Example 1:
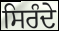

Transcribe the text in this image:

ਸਿਰੰਦੇ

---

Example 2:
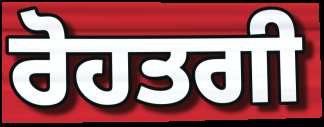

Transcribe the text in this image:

ਰੋਹਤਗੀ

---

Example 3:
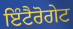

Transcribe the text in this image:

ਇੰਟੈਰੋਗੇਟ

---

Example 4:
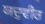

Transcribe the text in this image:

ਯਦੁਵੀਰ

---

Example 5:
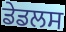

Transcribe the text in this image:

ਡੇਡਲਸ